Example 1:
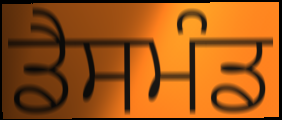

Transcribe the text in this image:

ਡੈਸਮੰਡ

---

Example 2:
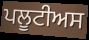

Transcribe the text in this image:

ਪਲੂਟੀਅਸ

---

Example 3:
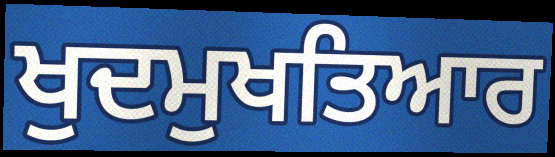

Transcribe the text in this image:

ਖੁਦਮੁਖਤਿਆਰ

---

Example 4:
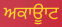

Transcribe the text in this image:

ਅਕਾਊਾਟ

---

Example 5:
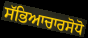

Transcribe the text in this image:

ਸੱਭਿਆਚਾਰਸੋਧੋ